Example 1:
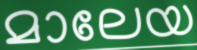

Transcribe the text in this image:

മാലേയ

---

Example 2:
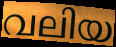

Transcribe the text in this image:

വലിയ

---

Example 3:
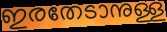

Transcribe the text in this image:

ഇരതേടാനുള്ള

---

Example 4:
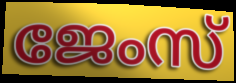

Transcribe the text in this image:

ജേംസ്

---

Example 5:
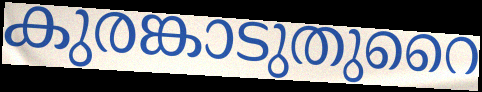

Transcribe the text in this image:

കുരങ്കാടുതുറൈ